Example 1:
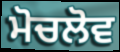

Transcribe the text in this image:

ਮੋਚਲੋਵ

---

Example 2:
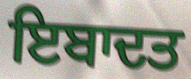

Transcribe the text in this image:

ਇਬਾਦਤ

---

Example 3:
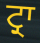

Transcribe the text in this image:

ਟ੍ਰਾ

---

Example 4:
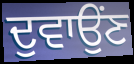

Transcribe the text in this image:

ਦੁਵਾਉਂਣ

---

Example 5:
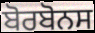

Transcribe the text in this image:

ਬੋਰਬੋਨਸ